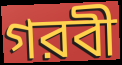
গরবী